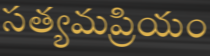
సత్యమప్రియం